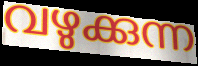
വഴുക്കുന്ന